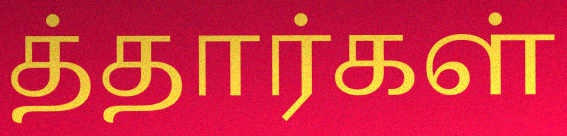
த்தார்கள்